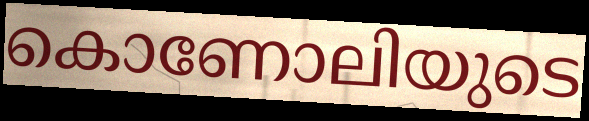
കൊണോലിയുടെ